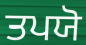
ਤਪਯੋ